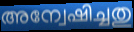
അന്വേഷിച്ചതു